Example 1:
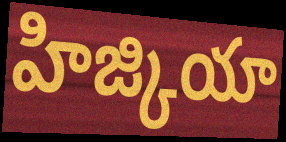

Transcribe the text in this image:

హిజ్కియా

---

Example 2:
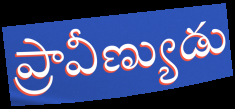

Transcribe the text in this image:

ప్రావీణ్యుడు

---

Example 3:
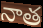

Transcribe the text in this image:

నాత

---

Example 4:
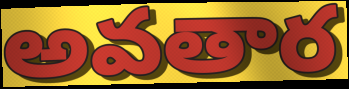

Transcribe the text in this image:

అవతార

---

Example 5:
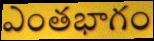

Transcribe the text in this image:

ఎంతభాగం